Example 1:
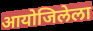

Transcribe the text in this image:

आयोजिलेला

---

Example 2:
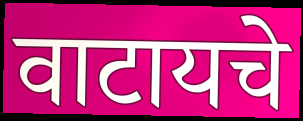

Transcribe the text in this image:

वाटायचे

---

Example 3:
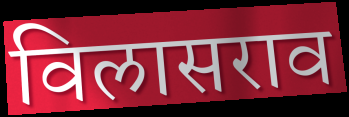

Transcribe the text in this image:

विलासराव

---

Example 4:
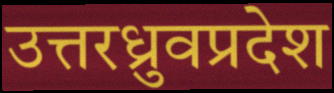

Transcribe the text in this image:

उत्तरध्रुवप्रदेश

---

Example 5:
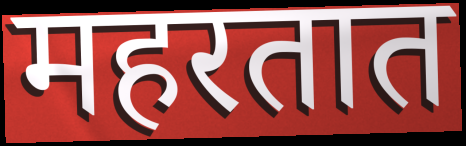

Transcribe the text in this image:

महरतात